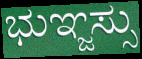
ಭುಞ್ಜಸ್ಸು